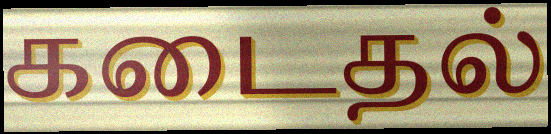
கடைதல்